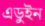
এডুইন